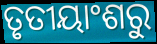
ତୃତୀୟାଂଶରୁ